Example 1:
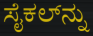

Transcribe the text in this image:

ಸೈಕಲ್‌ನ್ನು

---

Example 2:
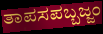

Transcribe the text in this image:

ತಾಪಸಪಬ್ಬಜ್ಜಂ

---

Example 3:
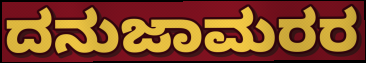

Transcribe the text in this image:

ದನುಜಾಮರರ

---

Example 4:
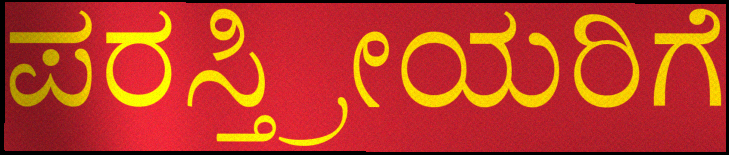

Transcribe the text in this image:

ಪರಸ್ತ್ರೀಯರಿಗೆ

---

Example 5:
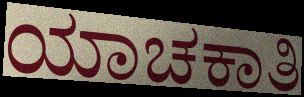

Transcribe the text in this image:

ಯಾಚಕಾತಿ